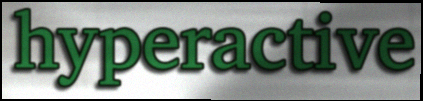
hyperactive